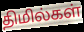
திமில்கள்